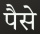
पैसे